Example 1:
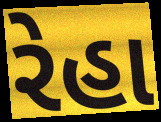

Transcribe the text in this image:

રેહા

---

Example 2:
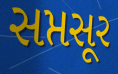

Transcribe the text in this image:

સપ્તસૂર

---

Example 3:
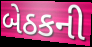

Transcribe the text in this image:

બેઠકની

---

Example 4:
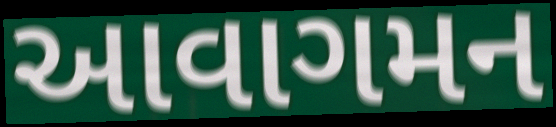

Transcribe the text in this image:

આવાગમન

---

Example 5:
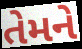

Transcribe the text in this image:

તેમને